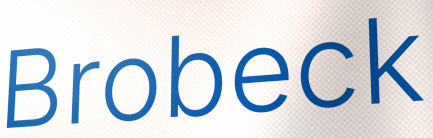
Brobeck